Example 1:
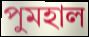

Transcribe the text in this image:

পুমহাল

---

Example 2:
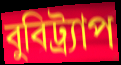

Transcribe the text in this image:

বুবিট্র্যাপ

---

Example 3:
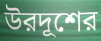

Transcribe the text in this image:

উরদূশের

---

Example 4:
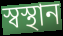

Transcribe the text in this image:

স্বস্থান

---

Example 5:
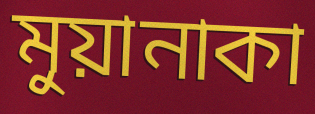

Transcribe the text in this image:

মুয়ানাকা